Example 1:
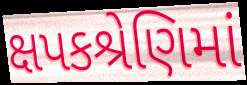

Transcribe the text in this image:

ક્ષપકશ્રેણિમાં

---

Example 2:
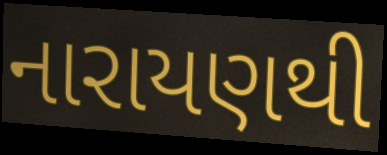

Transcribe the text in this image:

નારાયણથી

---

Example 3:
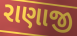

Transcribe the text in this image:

રાણાજી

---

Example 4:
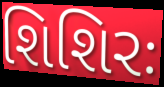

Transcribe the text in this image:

શિશિરઃ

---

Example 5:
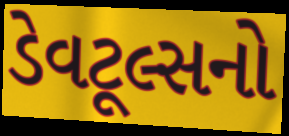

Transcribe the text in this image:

ડેવટૂલ્સનો